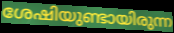
ശേഷിയുണ്ടായിരുന്ന